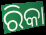
ରିକା